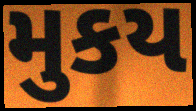
મુકય